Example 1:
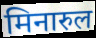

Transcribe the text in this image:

मिनारुल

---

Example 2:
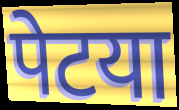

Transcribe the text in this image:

पेटया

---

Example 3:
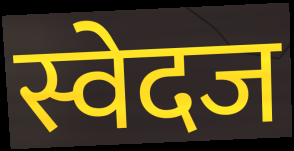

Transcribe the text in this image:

स्वेदज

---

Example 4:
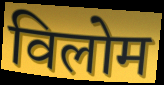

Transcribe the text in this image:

विलोम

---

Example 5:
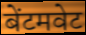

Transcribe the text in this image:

बेंटमवेट